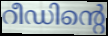
റീഡിന്റെ